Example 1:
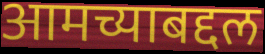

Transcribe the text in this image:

आमच्याबद्दल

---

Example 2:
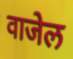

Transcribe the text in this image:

वाजेल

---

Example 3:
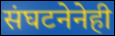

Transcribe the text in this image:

संघटनेनेही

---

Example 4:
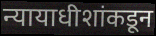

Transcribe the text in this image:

न्यायाधीशांकडून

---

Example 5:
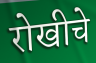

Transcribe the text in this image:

रोखीचे